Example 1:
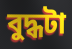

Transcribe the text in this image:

বুদ্ধটা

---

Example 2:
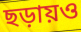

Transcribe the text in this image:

ছড়ায়ও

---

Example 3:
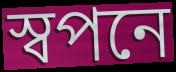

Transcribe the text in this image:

স্বপনে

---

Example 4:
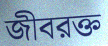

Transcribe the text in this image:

জীবরক্ত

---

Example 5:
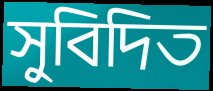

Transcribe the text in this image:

সুবিদিত